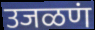
उजळणं